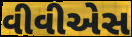
વીવીએસ